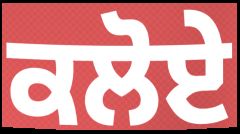
ਕਲੋਏ